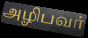
அழிபவர்